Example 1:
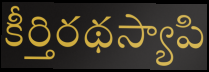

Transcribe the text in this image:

కీర్తిరథస్యాపి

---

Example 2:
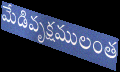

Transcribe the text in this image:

మేడివృక్షములంత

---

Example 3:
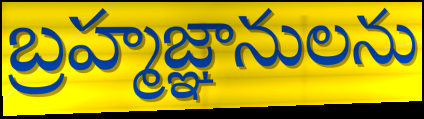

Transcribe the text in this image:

బ్రహ్మజ్ఞానులను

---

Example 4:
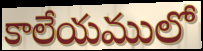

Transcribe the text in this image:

కాలేయములో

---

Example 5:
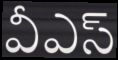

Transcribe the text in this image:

వీఎస్